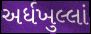
અર્ધખુલ્લાં